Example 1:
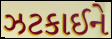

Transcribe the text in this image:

ઝટકાઈને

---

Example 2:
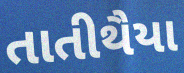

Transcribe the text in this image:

તાતીથૈયા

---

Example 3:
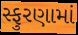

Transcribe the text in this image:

સ્ફુરણામાં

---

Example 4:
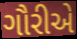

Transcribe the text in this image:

ગૌરીએ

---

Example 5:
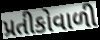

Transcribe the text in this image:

પ્રતીકોવાળી